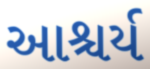
આશ્ચર્ય